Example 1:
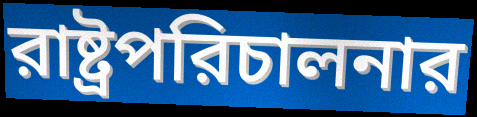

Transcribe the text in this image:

রাষ্ট্রপরিচালনার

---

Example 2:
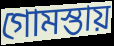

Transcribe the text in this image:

গোমস্তায়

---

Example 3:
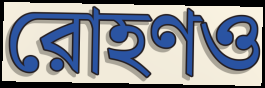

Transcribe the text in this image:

রোহণও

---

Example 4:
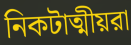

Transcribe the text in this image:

নিকটাত্মীয়রা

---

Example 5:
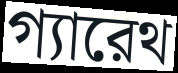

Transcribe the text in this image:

গ্যারেথ